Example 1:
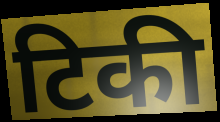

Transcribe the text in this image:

टिकी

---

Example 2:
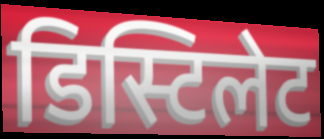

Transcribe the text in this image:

डिस्टिलेट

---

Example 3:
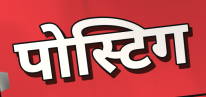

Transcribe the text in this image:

पोस्टिग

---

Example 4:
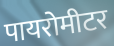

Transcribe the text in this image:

पायरोमीटर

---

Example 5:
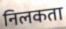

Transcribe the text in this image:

निलकता